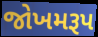
જોખમરૂપ